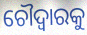
ଚୌଦ୍ୱାରକୁ